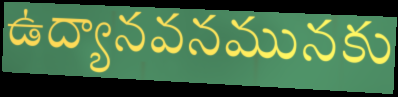
ఉద్యానవనమునకు